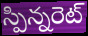
స్పిన్నరెట్